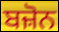
ਬਜ਼ੋਨ